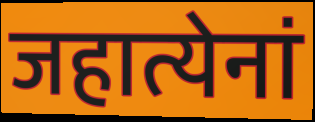
जहात्येनां